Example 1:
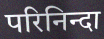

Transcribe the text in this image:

परिनिन्दा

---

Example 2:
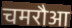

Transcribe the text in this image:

चमरौआ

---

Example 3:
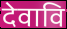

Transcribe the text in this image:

देवावि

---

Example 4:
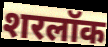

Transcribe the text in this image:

शरलॉक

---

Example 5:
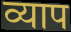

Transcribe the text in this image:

व्याप